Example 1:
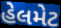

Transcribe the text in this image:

હેલમેટ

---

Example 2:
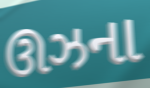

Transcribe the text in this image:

ઊઝના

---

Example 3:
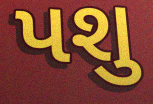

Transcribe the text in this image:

પશુ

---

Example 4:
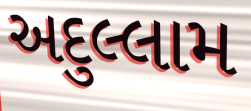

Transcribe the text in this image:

અદુલ્લામ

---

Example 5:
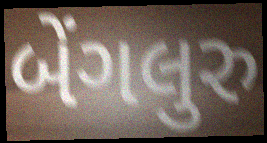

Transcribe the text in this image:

બેંગલુરુ